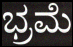
ಭ್ರಮೆ